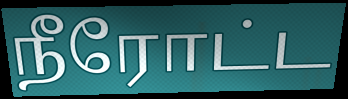
நீரோட்ட